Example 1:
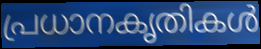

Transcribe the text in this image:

പ്രധാനകൃതികൾ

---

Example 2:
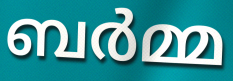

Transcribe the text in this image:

ബർമ്മ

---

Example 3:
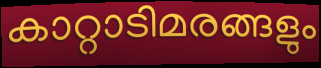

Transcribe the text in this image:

കാറ്റാടിമരങ്ങളും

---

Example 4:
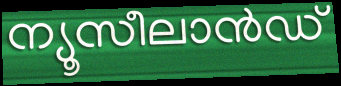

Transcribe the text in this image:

ന്യൂസീലാൻഡ്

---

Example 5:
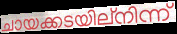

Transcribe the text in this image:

ചായക്കടയില്നിന്ന്